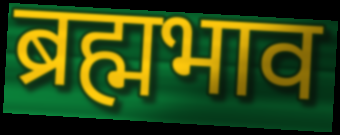
ब्रह्मभाव